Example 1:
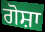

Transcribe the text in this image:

ਗੋਸ਼ਾ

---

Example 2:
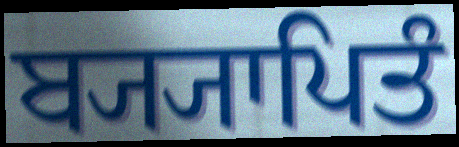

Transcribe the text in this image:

ਬ੍ਯ੍ਯਾਪਿਤੰ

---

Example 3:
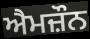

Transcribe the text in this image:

ਐਮਜ਼ੌਨ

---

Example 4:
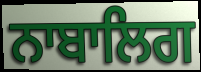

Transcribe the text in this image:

ਨਾਬਾਲਿਗ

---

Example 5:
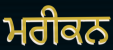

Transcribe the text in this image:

ਮਰੀਕਨ